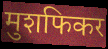
मुशफिकर